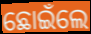
ଛୋଇଁଲେ